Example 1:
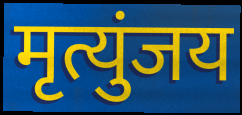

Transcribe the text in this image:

मृत्युंजय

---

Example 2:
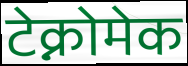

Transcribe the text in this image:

टेक्नोमेक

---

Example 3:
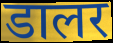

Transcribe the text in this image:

डालर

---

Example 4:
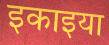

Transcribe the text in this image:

इकाइया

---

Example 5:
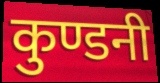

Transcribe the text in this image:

कुण्डनी